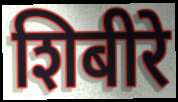
शिबीरे